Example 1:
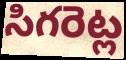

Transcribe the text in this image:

సిగరెట్ల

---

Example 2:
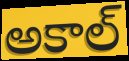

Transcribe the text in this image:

అకాల్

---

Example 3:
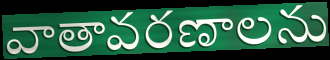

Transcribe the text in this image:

వాతావరణాలను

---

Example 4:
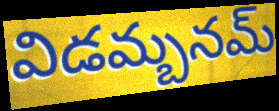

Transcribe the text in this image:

విడమ్బనమ్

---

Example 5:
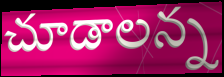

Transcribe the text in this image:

చూడాలన్న